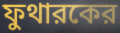
ফুথারকের